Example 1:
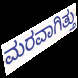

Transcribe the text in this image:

ಮರವಾಗಿತ್ತು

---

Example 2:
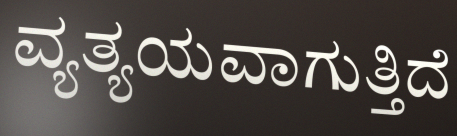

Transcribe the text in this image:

ವ್ಯತ್ಯಯವಾಗುತ್ತಿದೆ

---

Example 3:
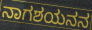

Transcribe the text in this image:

ನಾಗಶಯನನ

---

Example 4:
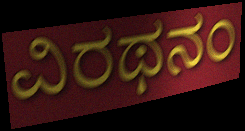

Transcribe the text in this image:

ವಿರಥನಂ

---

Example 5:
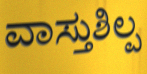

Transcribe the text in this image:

ವಾಸ್ತುಶಿಲ್ಪ